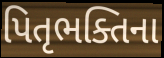
પિતૃભક્તિના